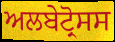
ਅਲਬੇਟ੍ਰੋਸਸ